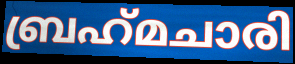
ബ്രഹ്‌മചാരി